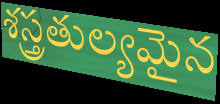
శస్త్రతుల్యమైన